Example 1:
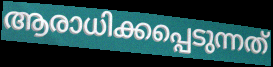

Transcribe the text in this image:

ആരാധിക്കപ്പെടുന്നത്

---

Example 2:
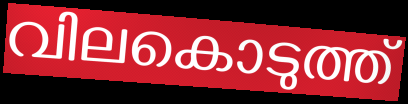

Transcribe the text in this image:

വിലകൊടുത്ത്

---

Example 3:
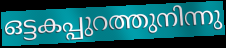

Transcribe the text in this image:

ഒട്ടകപ്പുറത്തുനിന്നു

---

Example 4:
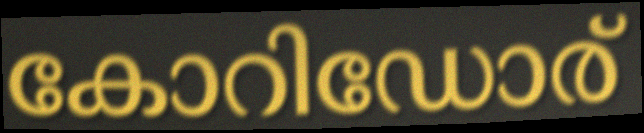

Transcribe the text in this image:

കോറിഡോര്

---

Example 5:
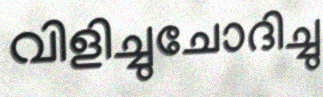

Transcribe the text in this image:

വിളിച്ചുചോദിച്ചു